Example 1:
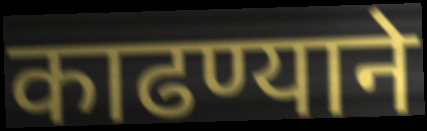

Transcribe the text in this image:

काढण्याने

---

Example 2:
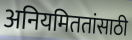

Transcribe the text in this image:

अनियमिततांसाठी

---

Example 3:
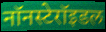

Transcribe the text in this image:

नॉनस्टेरॉइडल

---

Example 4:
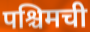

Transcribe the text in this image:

पश्चिमची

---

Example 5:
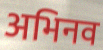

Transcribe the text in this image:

अभिनव